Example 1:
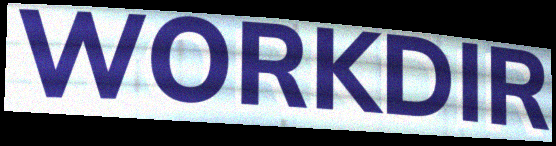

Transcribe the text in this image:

WORKDIR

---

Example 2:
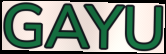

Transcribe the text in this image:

GAYU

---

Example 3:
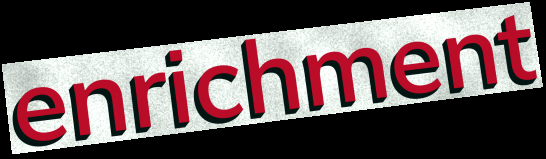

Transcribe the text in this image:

enrichment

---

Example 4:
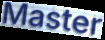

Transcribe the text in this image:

Master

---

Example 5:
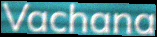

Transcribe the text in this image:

Vachana